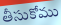
తీసుకోము